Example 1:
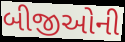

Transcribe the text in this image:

બીજીઓની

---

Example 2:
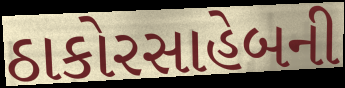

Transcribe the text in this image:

ઠાકોરસાહેબની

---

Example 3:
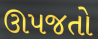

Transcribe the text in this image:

ઊપજતો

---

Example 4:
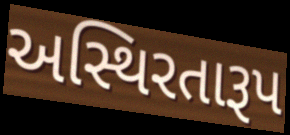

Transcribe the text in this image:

અસ્થિરતારૂપ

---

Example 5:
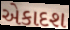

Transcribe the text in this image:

એકાદશ